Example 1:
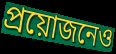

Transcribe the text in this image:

প্রয়োজনেও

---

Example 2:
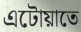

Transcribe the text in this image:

এটোয়াতে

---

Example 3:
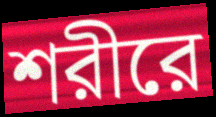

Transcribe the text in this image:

শরীরে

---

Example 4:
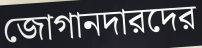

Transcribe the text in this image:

জোগানদারদের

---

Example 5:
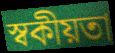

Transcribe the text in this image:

স্বকীয়তা